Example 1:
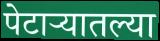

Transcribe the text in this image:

पेटाऱ्यातल्या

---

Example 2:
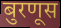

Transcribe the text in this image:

बुरणूस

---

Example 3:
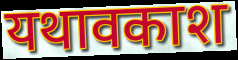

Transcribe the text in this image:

यथावकाश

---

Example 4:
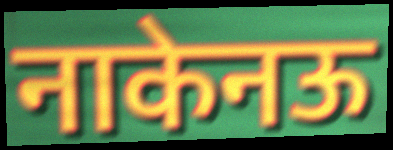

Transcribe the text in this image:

नाकेनऊ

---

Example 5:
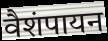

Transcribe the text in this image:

वैशंपायन